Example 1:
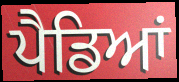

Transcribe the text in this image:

ਪੈਡਿਆਂ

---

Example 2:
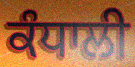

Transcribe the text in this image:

ਕੰਧਾਲੀ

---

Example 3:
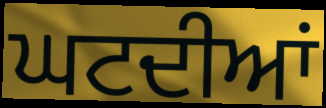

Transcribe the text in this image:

ਘਟਦੀਆਂ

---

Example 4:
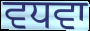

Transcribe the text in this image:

ਵਧਵਾ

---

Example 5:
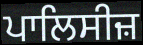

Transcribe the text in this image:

ਪਾਲਿਸੀਜ਼